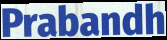
Prabandh